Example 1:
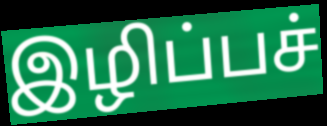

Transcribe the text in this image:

இழிப்பச்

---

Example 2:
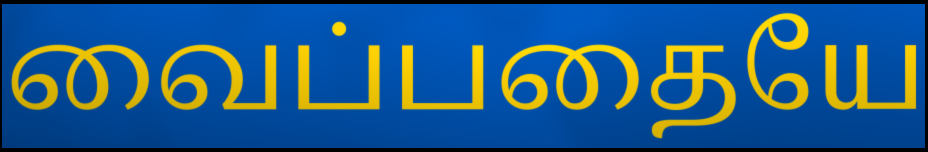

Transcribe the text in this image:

வைப்பதையே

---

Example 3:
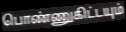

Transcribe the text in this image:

பொண்ணுகிட்டயும்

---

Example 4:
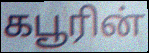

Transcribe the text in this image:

கபூரின்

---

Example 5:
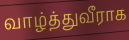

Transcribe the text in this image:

வாழ்த்துவீராக